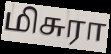
மிசுரா